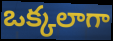
ఒక్కలాగా